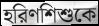
হরিণশিশুকে